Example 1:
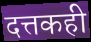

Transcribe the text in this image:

दत्तकही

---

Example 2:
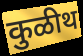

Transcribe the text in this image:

कुळीथ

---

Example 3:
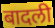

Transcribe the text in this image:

बादली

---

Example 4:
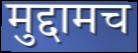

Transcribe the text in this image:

मुद्दामच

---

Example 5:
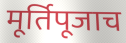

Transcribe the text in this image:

मूर्तिपूजाच